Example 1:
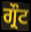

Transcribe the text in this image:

ਗ੍ਰੌਟ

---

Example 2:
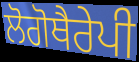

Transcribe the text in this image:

ਲੋਗੋਥੈਰੇਪੀ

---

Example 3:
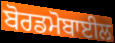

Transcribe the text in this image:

ਬੋਰਡਮੋਬਾਈਲ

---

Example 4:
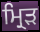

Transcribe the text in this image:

ਮ੍ਰਿੜ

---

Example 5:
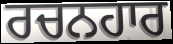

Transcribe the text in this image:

ਰਚਨਹਾਰ